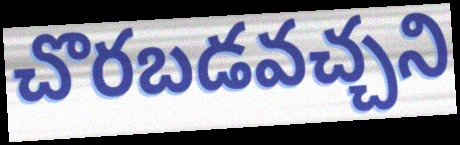
చొరబడవచ్చని